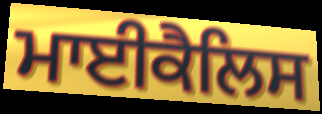
ਮਾਈਕੈਲਿਸ